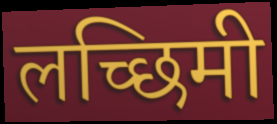
लच्छिमी